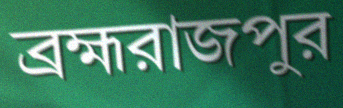
ব্রহ্মরাজপুর